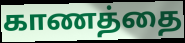
காணத்தை